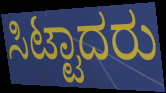
ಸಿಟ್ಟಾದರು